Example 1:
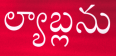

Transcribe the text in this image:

ల్యాబ్లను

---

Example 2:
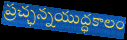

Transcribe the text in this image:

ప్రచ్ఛన్నయుద్ధకాలం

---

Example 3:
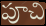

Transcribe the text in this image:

పూచి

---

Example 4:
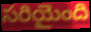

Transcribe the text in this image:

సరియైంది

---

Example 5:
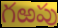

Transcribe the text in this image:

గఱపు